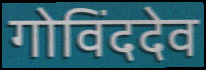
गोविंददेव